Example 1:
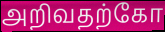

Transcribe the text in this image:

அறிவதற்கோ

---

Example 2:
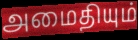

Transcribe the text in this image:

அமைதியும்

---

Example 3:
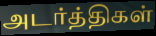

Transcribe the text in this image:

அடர்த்திகள்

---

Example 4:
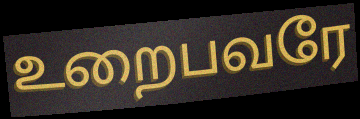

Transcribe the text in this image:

உறைபவரே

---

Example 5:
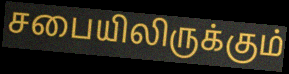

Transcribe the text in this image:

சபையிலிருக்கும்